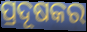
ପ୍ରଦୂଷକର